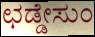
ಛಡ್ಡೇಸುಂ